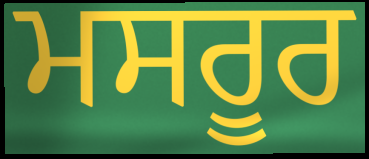
ਮਸਰੂਰ